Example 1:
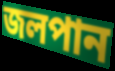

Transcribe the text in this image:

জলপান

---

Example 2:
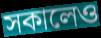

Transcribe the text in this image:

সকালেও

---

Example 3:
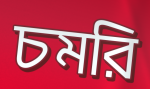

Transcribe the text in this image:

চমরি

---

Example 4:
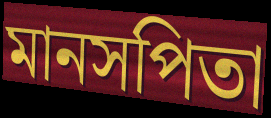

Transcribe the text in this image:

মানসপিতা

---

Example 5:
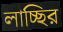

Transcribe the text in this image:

লাচ্ছির